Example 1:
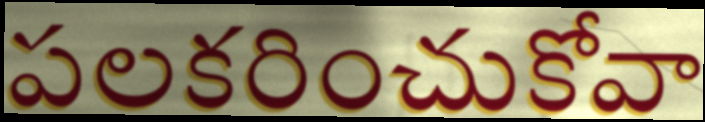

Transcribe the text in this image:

పలకరించుకోవా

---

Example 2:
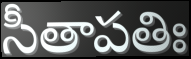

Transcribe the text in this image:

సీతాపతిః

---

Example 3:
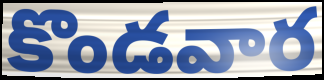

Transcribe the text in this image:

కొండవార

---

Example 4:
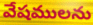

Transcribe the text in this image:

వేషములను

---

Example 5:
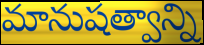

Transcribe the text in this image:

మానుషత్వాన్ని